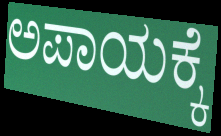
ಅಪಾಯಕ್ಕೆ